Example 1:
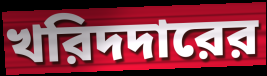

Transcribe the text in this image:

খরিদদারের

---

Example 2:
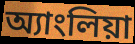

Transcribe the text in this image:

অ্যাংলিয়া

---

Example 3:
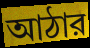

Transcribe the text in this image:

আঠার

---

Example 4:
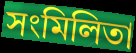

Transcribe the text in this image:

সংমিলিতা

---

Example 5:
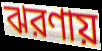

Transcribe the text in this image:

ঝরণায়